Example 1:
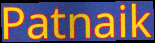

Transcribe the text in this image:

Patnaik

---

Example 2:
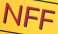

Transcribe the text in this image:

NFF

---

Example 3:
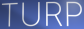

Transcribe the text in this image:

TURP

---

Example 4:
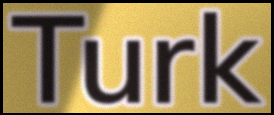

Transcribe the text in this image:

Turk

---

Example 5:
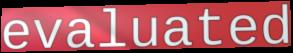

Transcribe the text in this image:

evaluated